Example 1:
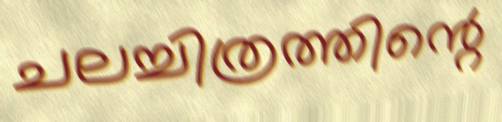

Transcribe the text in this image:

ചലച്ചിത്രത്തിന്റെ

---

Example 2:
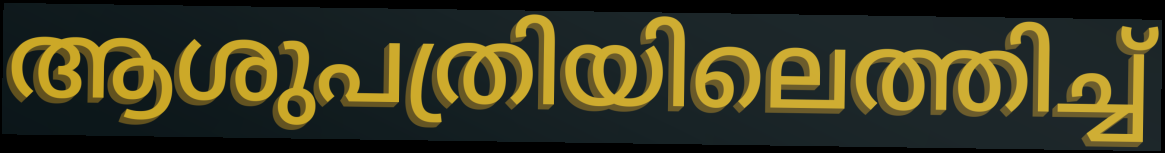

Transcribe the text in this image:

ആശുപത്രിയിലെത്തിച്ച്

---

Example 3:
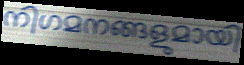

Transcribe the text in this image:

നിഗമനങ്ങളുമായി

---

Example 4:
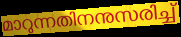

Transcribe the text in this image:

മാറുന്നതിനനുസരിച്ച്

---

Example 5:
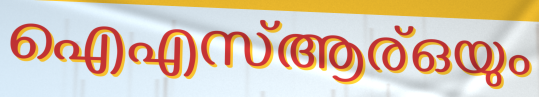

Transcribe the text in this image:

ഐഎസ്ആര്ഒയും